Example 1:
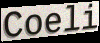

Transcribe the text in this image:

Coeli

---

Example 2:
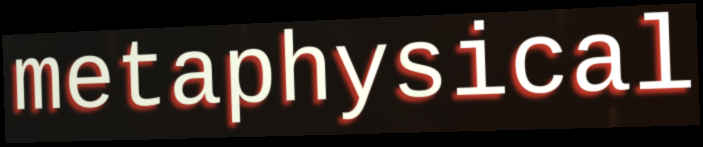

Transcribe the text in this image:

metaphysical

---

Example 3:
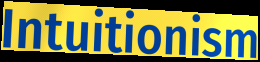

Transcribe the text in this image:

Intuitionism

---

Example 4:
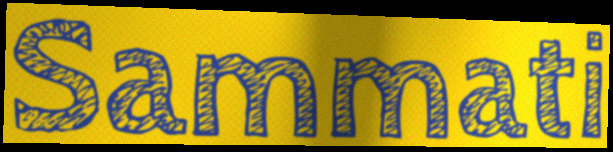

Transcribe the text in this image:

Sammati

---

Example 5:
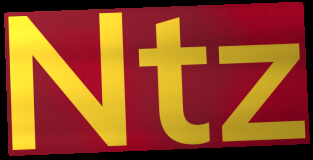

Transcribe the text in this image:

Ntz